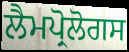
ਲੈਮਪ੍ਰੋਲੋਗਸ